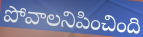
పోవాలనిపించింది